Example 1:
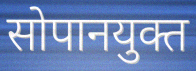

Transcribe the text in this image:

सोपानयुक्त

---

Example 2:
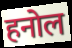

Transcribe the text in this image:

हनोल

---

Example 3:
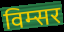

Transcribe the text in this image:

विम्सर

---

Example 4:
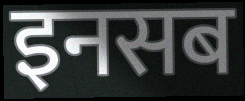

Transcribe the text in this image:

इनसब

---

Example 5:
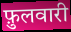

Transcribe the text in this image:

फ़ुलवारी